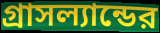
গ্রাসল্যান্ডের